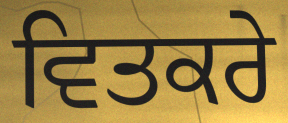
ਵਿਤਕਰੇ